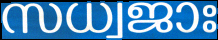
സധ്വജാഃ